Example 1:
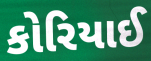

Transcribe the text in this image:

કોરિયાઈ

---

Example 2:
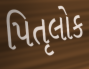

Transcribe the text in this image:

પિતૃલોક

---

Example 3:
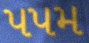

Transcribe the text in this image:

પપમ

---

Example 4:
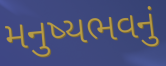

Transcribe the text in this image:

મનુષ્યભવનું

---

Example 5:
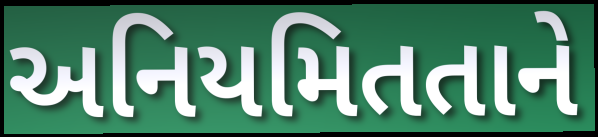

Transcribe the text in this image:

અનિયમિતતાને